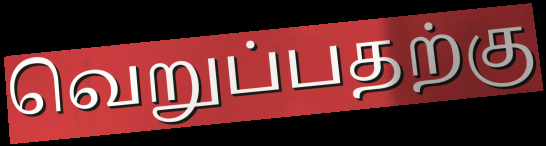
வெறுப்பதற்கு